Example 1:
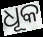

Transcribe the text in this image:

ଧୂକ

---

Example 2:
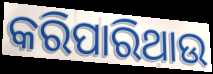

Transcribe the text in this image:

କରିପାରିଥାଉ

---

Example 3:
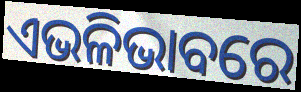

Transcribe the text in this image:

ଏଭଳିଭାବରେ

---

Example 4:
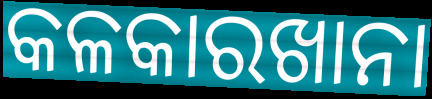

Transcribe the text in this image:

କଳକାରଖାନା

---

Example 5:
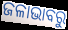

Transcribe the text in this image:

ଜଳାଭାବରୁ